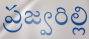
ప్రజ్వరిల్లి